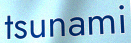
tsunami